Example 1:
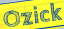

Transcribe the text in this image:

Ozick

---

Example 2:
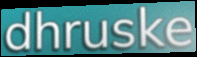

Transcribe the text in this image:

dhruske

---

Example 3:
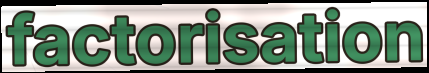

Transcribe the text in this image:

factorisation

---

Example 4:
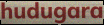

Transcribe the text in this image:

hudugara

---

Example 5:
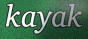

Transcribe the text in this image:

kayak